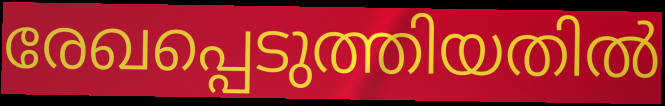
രേഖപ്പെടുത്തിയതിൽ